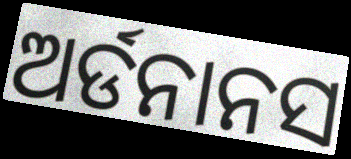
ଅର୍ଡନାନସ